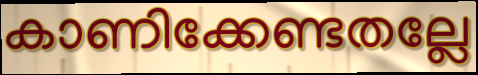
കാണിക്കേണ്ടതല്ലേ